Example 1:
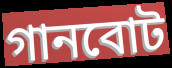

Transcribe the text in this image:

গানবোট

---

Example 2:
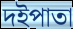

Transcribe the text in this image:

দইপাতা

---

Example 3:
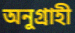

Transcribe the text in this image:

অনুগ্রাহী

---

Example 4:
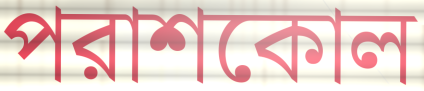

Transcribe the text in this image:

পরাশকোল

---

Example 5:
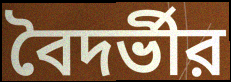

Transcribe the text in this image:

বৈদর্ভীর